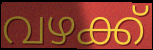
വഴക്ക്